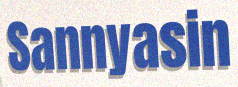
Sannyasin